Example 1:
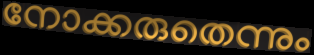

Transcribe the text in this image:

നോക്കരുതെന്നും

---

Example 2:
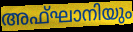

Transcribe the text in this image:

അഫ്ഘാനിയും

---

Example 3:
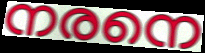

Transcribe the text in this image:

നരനെ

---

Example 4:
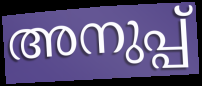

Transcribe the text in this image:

അനുപ്പ്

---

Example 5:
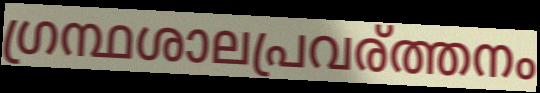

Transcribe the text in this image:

ഗ്രന്ഥശാലപ്രവര്ത്തനം